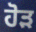
ਹੋੜ